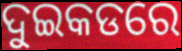
ଦୁଇକଡରେ